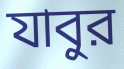
যাবুর